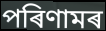
পৰিণামৰ